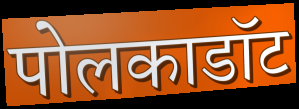
पोलकाडॉट